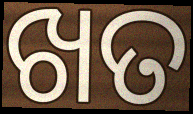
ଖତ